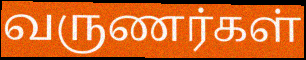
வருணர்கள்